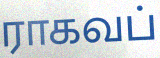
ராகவப்